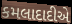
કમલાદાદીએ